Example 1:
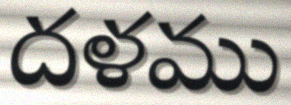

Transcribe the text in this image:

దళము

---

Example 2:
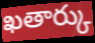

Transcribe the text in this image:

ఖతార్కు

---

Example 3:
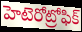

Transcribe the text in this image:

హెటెరోట్రోఫిక్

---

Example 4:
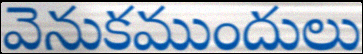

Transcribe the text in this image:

వెనుకముందులు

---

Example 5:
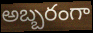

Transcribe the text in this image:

అబ్బరంగా